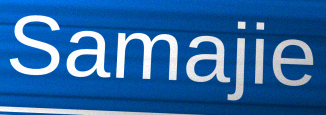
Samajie